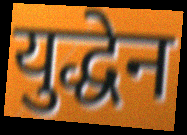
युद्धेन